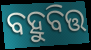
ବହୁବିତ୍ତ